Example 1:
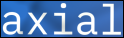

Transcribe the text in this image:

axial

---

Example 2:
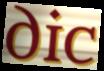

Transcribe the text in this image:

dic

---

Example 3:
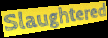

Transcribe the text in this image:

Slaughtered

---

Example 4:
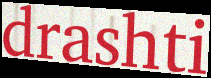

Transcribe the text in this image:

drashti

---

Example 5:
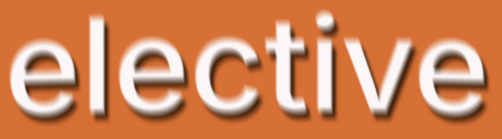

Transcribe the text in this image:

elective